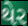
થેર